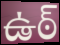
ఉఠ్